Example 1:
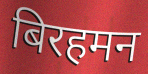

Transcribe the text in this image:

बिरहमन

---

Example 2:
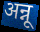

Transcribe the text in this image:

अन्नू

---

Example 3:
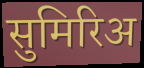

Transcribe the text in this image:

सुमिरिअ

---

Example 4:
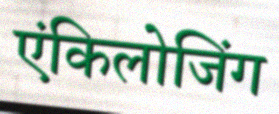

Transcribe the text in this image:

एंकिलोजिंग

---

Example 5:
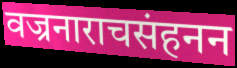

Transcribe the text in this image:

वज्रनाराचसंहनन